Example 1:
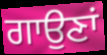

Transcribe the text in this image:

ਗਾਉਣਾਂ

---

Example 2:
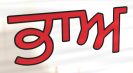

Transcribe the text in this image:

ਭਾਅ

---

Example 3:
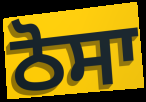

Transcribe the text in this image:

ਠੋਸਾ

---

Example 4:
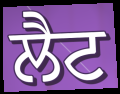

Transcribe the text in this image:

ਲੈਟ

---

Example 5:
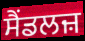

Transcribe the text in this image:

ਸੈਂਡਲਜ਼